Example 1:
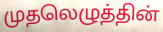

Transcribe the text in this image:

முதலெழுத்தின்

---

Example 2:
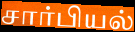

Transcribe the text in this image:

சார்பியல்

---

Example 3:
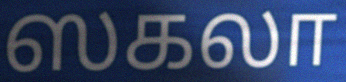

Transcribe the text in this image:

ஸகலா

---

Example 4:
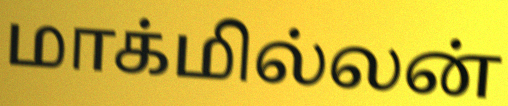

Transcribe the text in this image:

மாக்மில்லன்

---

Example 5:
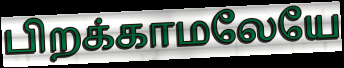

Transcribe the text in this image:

பிறக்காமலேயே